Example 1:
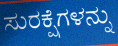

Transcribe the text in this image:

ಸುರಕ್ಷೆಗಳನ್ನು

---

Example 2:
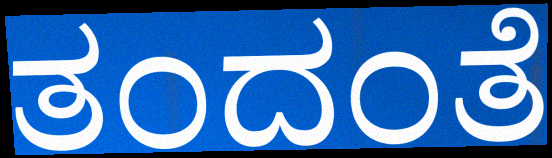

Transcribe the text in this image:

ತಂದಂತೆ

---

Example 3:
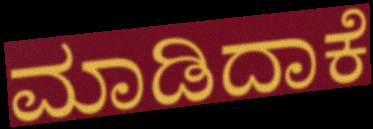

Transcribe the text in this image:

ಮಾಡಿದಾಕೆ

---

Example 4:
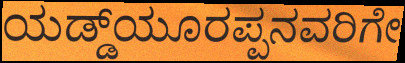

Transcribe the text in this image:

ಯಡ್ಡ್‌ಯೂರಪ್ಪನವರಿಗೇ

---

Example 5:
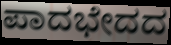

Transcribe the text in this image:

ಪಾದಭೇದದ